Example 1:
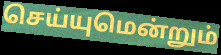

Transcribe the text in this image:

செய்யுமென்றும்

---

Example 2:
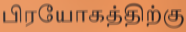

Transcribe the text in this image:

பிரயோகத்திற்கு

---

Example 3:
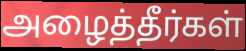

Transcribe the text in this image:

அழைத்தீர்கள்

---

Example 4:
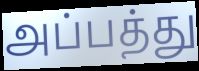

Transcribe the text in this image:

அப்பத்து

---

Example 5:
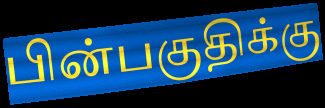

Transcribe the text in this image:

பின்பகுதிக்கு